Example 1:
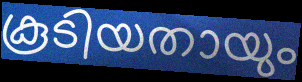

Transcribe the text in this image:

കൂടിയതായും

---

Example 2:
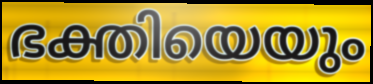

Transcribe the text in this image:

ഭക്തിയെയും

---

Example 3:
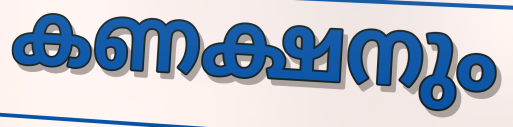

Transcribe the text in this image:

കണക്ഷനും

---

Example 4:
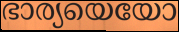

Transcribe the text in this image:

ഭാര്യയെയോ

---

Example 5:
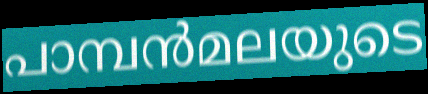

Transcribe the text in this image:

പാമ്പൻമലയുടെ